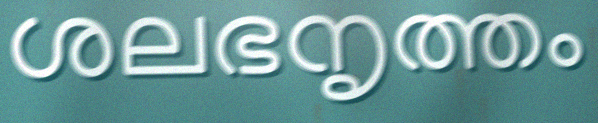
ശലഭനൃത്തം